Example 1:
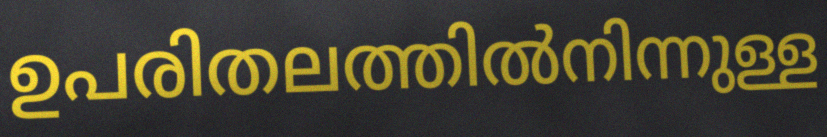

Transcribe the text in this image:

ഉപരിതലത്തിൽനിന്നുള്ള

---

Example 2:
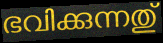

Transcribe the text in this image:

ഭവിക്കുന്നതു്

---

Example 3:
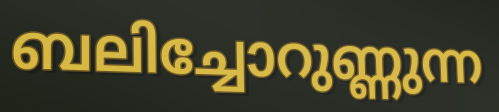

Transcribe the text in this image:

ബലിച്ചോറുണ്ണുന്ന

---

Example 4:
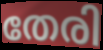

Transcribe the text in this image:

തേരി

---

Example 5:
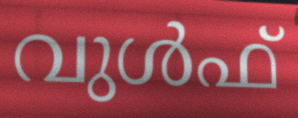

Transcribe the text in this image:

വുൾഫ്